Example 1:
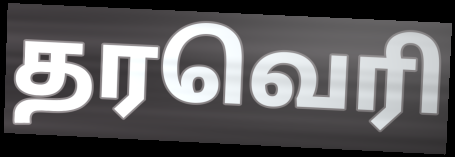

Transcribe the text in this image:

தரவெரி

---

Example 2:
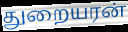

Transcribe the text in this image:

துறையரன்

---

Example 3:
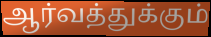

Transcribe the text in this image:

ஆர்வத்துக்கும்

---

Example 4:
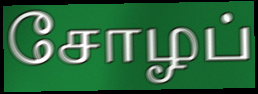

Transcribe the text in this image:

சோழப்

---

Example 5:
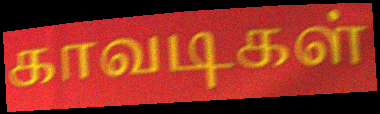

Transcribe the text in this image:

காவடிகள்